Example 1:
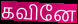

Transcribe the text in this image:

கவினே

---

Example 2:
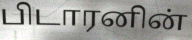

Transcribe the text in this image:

பிடாரனின்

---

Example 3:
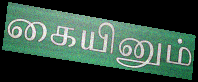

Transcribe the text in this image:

கையினும்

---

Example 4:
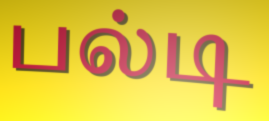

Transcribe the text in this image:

பல்டி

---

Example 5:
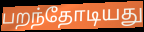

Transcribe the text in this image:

பறந்தோடியது